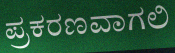
ಪ್ರಕರಣವಾಗಲಿ